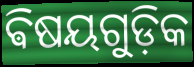
ଵିଷୟଗୁଡ଼ିକ